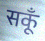
सकूँ